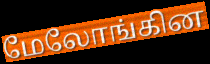
மேலோங்கின